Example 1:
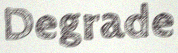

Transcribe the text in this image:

Degrade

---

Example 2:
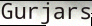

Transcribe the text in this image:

Gurjars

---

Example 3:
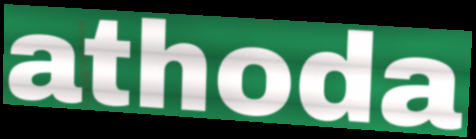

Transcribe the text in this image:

athoda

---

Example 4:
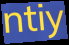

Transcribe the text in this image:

ntiy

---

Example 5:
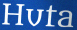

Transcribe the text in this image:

Huta